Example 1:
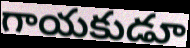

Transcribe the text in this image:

గాయకుడూ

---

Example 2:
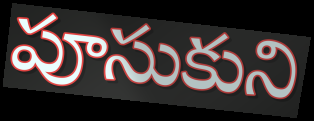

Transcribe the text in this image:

పూసుకుని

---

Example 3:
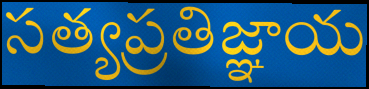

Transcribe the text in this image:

సత్యప్రతిజ్ఞాయ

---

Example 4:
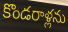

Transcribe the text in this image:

కొండరాళ్లను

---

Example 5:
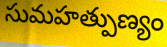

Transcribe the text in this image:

సుమహత్పుణ్యం